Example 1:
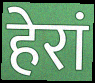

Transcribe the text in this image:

हेरां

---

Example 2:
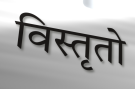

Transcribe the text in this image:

विस्तृतो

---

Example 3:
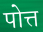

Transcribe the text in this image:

पोत्त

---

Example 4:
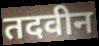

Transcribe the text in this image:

तदवीन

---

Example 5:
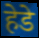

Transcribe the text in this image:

हेडे